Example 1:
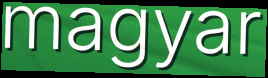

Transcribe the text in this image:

magyar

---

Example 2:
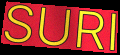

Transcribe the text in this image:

SURI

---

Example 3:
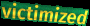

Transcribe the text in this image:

victimized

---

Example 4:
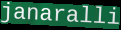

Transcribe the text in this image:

janaralli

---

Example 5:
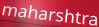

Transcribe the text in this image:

maharshtra